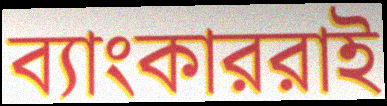
ব্যাংকাররাই